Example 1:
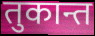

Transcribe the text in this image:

तुकान्त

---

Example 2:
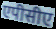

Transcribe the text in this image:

एपीसीए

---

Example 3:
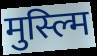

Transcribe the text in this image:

मुस्ल्मि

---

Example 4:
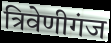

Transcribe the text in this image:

त्रिवेणीगंज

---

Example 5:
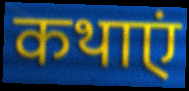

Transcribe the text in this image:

कथाएं